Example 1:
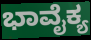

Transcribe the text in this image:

ಭಾವೈಕ್ಯ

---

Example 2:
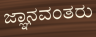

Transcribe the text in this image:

ಜ್ಞಾನವಂತರು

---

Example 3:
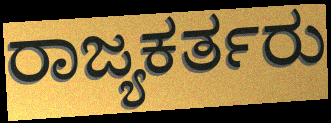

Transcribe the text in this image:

ರಾಜ್ಯಕರ್ತರು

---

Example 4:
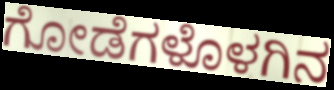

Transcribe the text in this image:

ಗೋಡೆಗಳೊಳಗಿನ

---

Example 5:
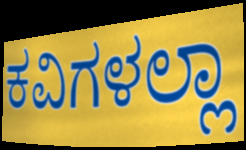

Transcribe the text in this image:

ಕವಿಗಳಲ್ಲಾ